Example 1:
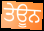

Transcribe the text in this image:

ਤੇਊਨ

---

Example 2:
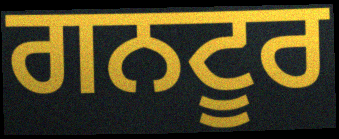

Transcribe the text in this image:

ਗਨਟੂਰ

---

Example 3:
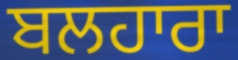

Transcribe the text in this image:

ਬਲਹਾਰਾ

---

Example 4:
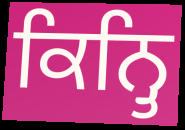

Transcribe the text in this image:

ਕਿਨ੍ਤਿ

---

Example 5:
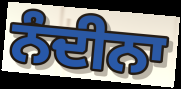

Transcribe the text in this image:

ਨੰਦੀਨਾ